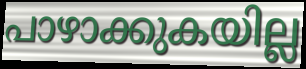
പാഴാക്കുകയില്ല